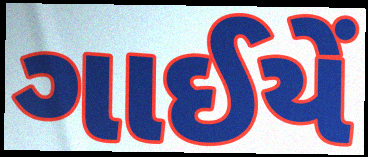
ગાઈયેં